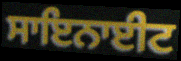
ਸਾਇਨਾਈਟ